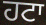
ਹਟਾ